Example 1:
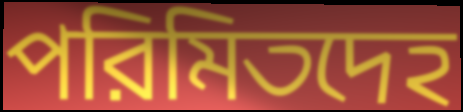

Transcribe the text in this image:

পরিমিতদেহ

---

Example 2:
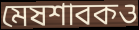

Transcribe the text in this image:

মেষশাবকও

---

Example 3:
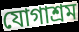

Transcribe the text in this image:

যোগাশ্রম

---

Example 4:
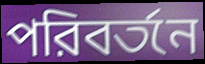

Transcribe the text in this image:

পরিবর্তনে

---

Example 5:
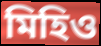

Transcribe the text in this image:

মিহিও